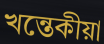
খন্তেকীয়া